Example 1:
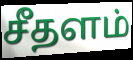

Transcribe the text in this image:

சீதளம்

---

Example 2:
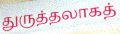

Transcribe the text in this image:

துருத்தலாகத்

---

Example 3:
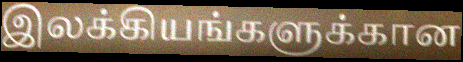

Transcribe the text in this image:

இலக்கியங்களுக்கான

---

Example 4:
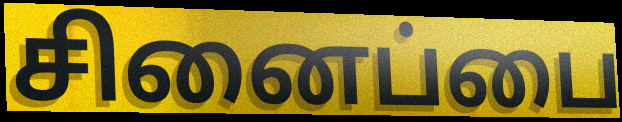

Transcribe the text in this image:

சினைப்பை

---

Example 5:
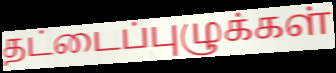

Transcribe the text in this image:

தட்டைப்புழுக்கள்